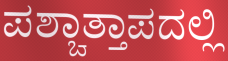
ಪಶ್ಚಾತ್ತಾಪದಲ್ಲಿ